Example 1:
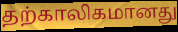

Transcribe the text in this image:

தற்காலிகமானது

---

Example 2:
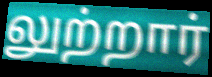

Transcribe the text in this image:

லுற்றார்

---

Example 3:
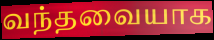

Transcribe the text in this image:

வந்தவையாக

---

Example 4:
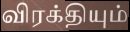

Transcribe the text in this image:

விரக்தியும்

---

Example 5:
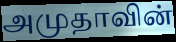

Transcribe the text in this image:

அமுதாவின்